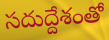
సదుద్దేశంతో